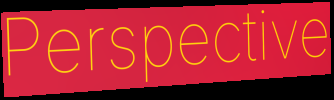
Perspective